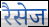
रैसेज